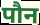
पौन